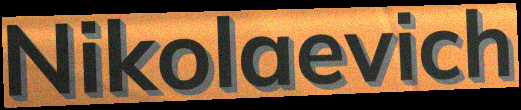
Nikolaevich